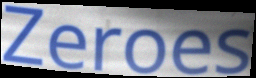
Zeroes